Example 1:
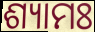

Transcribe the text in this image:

ଶ୍ୟାମଃ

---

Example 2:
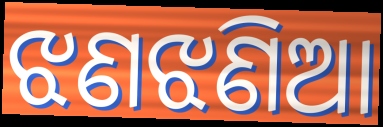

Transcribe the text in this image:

ଝଣଝଣିଆ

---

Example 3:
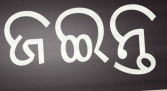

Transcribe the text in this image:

ଜଇନ୍ତ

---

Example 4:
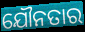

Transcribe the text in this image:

ଯୌନତାର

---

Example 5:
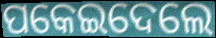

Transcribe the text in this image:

ପକେଇଦେଲେ